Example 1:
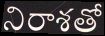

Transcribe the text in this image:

నిరాశతో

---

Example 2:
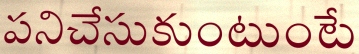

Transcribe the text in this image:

పనిచేసుకుంటుంటే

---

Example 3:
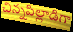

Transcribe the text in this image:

చిన్నపిల్లాడిగా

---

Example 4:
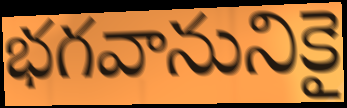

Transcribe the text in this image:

భగవానునికై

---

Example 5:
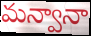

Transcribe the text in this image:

మన్వానా